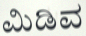
ಮಿಡಿವ